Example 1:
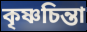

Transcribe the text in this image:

কৃষ্ণচিন্তা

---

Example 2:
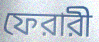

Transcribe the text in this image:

ফেরারী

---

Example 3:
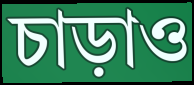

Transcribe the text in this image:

চাড়াও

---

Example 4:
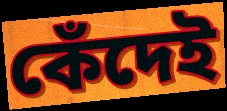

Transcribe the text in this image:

কেঁদেই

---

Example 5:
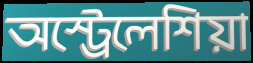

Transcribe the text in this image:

অস্ট্রেলেশিয়া